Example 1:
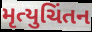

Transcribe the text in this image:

મૃત્યુચિંતન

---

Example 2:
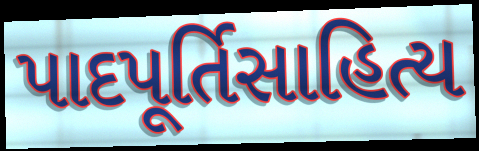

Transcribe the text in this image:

પાદપૂર્તિસાહિત્ય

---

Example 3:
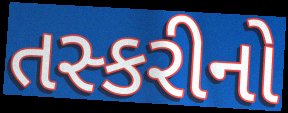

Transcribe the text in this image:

તસ્કરીનો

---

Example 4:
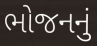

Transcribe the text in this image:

ભોજનનું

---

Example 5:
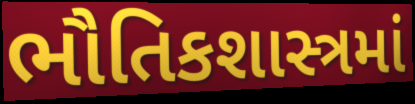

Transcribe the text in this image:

ભૌતિકશાસ્ત્રમાં